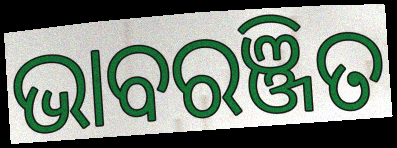
ଭାବରଞ୍ଜିତ